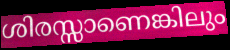
ശിരസ്സാണെങ്കിലും